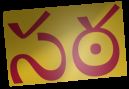
సఠ